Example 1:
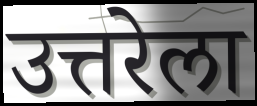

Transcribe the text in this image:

उत्तरेला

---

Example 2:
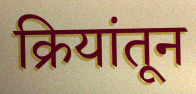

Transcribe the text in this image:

क्रियांतून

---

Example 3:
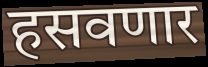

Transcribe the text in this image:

हसवणार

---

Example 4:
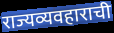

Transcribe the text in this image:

राज्यव्यवहाराची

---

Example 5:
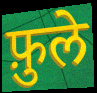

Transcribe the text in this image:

फ़ुले